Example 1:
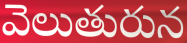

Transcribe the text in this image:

వెలుతురున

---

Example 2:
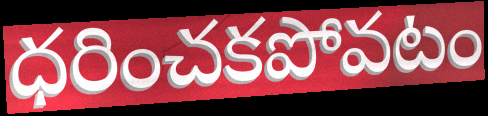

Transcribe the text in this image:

ధరించకపోవటం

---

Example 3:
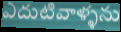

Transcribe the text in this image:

ఎదుటివాళ్ళను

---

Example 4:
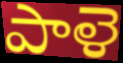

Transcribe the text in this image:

పాళె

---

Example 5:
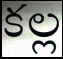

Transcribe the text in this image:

కల్ల